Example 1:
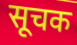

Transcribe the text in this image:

सूचक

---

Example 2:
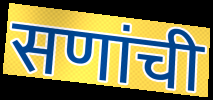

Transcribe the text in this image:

सणांची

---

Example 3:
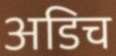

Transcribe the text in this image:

अडिच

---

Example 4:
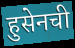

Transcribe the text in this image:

हुसेनची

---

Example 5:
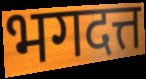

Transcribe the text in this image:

भगदत्त